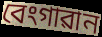
বেংগাৱান